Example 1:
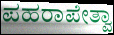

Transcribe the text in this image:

ಪಹರಾಪೇತ್ವಾ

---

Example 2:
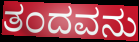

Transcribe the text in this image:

ತಂದವನು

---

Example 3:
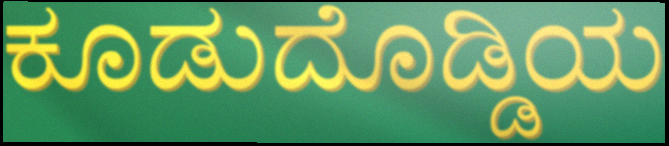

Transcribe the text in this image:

ಕೂಡುದೊಡ್ಡಿಯ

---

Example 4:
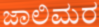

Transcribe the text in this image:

ಜಾಲಿಮರ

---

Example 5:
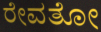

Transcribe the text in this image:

ರೇವತೋ